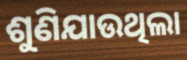
ଶୁଣିଯାଉଥିଲା